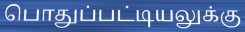
பொதுப்பட்டியலுக்கு